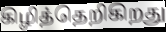
கிழித்தெறிகிறது